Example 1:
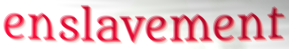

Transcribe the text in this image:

enslavement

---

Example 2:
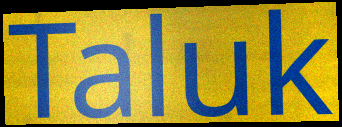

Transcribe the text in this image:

Taluk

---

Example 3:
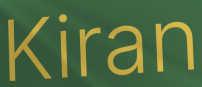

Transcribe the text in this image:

Kiran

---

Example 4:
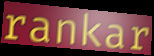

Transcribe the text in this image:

rankar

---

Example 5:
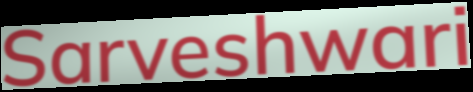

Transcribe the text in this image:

Sarveshwari